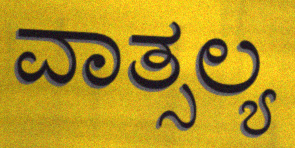
ವಾತ್ಸಲ್ಯ